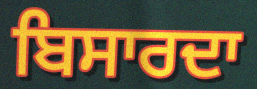
ਬਿਸਾਰਦਾ